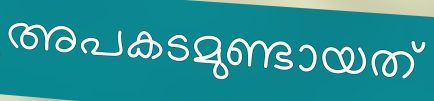
അപകടമുണ്ടായത്